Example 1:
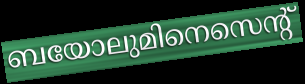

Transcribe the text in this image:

ബയോലുമിനെസെന്റ്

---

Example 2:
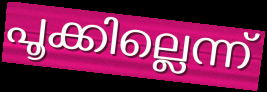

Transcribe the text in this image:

പൂക്കില്ലെന്ന്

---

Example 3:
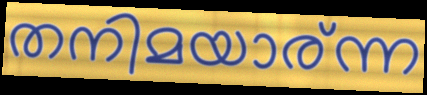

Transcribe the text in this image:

തനിമയാര്ന്ന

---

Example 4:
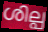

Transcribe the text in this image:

ശില്പ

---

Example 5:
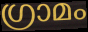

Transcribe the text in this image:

ഗ്രാമം